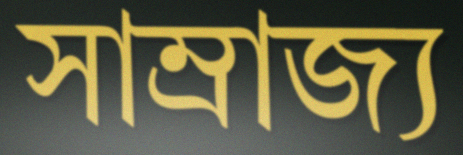
সাম্ৰাজ্য